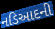
નડિઆદની